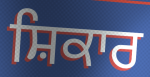
ਸ਼ਿਕਾਰ